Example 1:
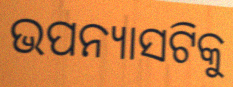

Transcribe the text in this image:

ଭପନ୍ୟାସଟିକୁ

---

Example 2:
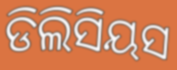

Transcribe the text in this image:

ଡିଲିସିୟସ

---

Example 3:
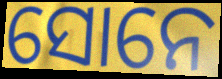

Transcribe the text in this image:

ସୋନେ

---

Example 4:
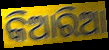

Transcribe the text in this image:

କିଆରିଆ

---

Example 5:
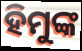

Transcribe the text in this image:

ହିମୁଙ୍କ